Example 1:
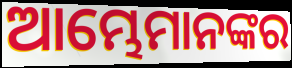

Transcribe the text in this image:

ଆମ୍ଭେମାନଙ୍କର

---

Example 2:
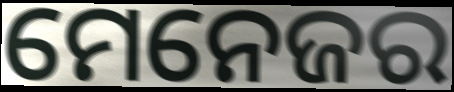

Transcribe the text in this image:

ମେନେଜର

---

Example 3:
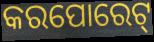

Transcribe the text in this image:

କରପୋରେଟ୍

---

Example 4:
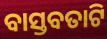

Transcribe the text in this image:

ବାସ୍ତବତାଟି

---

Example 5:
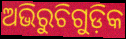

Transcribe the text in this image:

ଅଭିରୁଚିଗୁଡ଼ିକ